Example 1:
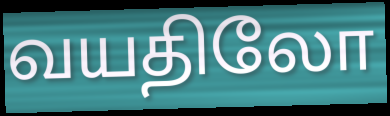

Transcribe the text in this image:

வயதிலோ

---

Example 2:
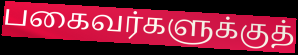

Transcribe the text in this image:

பகைவர்களுக்குத்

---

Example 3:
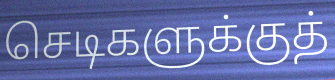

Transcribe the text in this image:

செடிகளுக்குத்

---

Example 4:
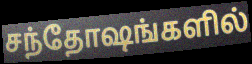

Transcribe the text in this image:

சந்தோஷங்களில்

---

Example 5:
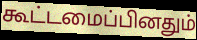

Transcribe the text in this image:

கூட்டமைப்பினதும்